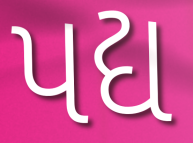
પદ્ય